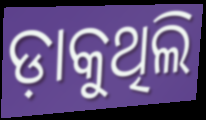
ଡ଼ାକୁଥିଲି